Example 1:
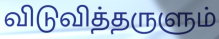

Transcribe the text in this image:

விடுவித்தருளும்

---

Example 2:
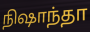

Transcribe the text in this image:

நிஷாந்தா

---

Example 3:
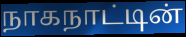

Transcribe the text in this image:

நாகநாட்டின்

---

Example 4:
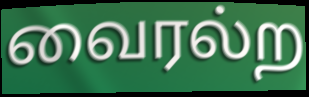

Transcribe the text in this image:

வைரல்ற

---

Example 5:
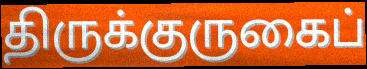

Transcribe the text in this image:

திருக்குருகைப்